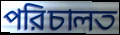
পরিচালত